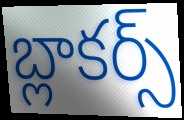
బ్లాకర్స్